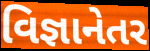
વિજ્ઞાનેતર